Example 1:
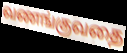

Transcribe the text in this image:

வணங்குவதை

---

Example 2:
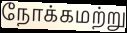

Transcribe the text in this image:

நோக்கமற்று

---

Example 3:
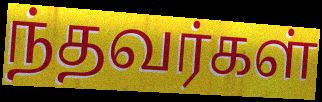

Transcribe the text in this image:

ந்தவர்கள்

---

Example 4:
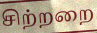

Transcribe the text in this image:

சிற்றறை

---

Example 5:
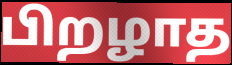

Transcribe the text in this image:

பிறழாத